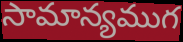
సామాన్యముగ